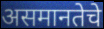
असमानतेचे